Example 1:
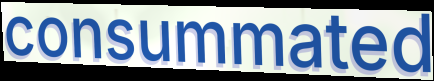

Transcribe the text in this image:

consummated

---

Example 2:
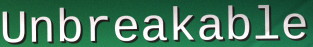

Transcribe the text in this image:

Unbreakable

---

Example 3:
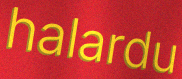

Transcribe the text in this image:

halardu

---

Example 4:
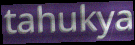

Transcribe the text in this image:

tahukya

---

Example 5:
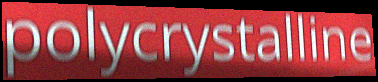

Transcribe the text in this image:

polycrystalline